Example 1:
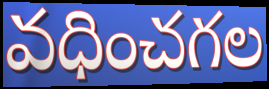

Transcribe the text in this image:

వధించగల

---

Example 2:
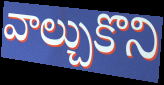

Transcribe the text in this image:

వాల్చుకొని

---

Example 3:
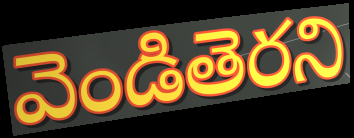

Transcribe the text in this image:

వెండితెరని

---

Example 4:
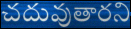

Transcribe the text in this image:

చదువుతారని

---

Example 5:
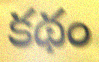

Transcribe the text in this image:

కథం